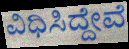
ವಿಧಿಸಿದ್ದೇವೆ